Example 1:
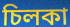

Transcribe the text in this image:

চিলকা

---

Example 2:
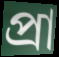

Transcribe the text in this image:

প্রা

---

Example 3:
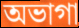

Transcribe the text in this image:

অভাগা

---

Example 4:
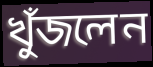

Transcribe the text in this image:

খুঁজলেন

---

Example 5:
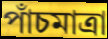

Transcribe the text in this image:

পাঁচমাত্রা